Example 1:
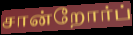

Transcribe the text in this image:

சான்றோர்ப்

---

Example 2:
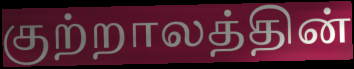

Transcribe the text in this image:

குற்றாலத்தின்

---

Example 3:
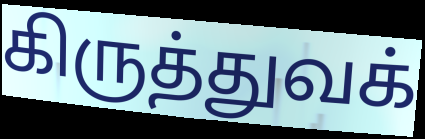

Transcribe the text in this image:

கிருத்துவக்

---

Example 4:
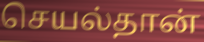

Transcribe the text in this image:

செயல்தான்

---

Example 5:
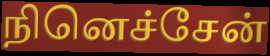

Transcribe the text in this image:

நினெச்சேன்